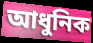
আধুনিক